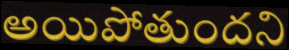
అయిపోతుందని